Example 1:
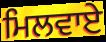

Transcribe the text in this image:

ਮਿਲਵਾਏ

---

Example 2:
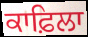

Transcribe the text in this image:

ਕਾਫ਼ਿਲਾ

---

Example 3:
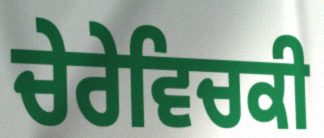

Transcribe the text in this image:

ਚੇਰੇਵਿਚਕੀ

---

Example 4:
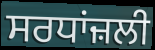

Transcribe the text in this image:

ਸਰਧਾਂਜ਼ਲੀ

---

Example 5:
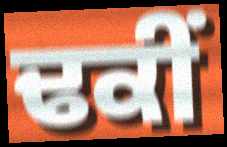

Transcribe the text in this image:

ਢਕੀਂ